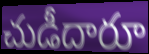
చుడీదారూ